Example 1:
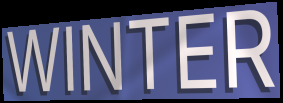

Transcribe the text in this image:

WINTER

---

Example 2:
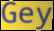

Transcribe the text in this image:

Gey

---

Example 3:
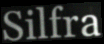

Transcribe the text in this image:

Silfra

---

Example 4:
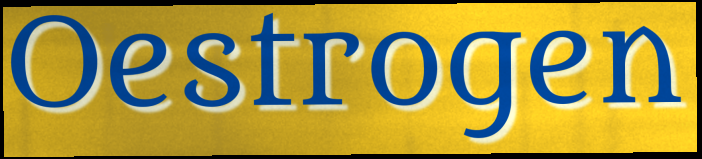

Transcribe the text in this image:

Oestrogen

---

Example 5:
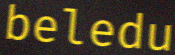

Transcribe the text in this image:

beledu